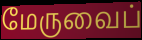
மேருவைப்